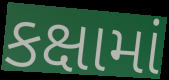
કક્ષામાં